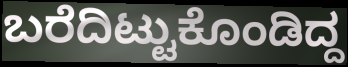
ಬರೆದಿಟ್ಟುಕೊಂಡಿದ್ದ